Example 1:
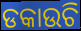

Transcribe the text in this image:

ଡକାଉଚି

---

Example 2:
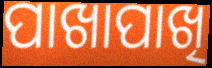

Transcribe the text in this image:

ପାଖାପାଖି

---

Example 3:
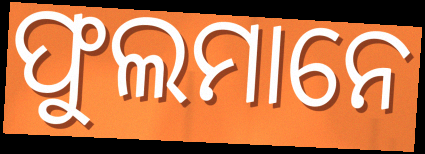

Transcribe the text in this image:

ଫୁଲମାନେ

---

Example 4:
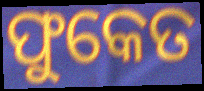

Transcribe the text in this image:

ଫୁକେତ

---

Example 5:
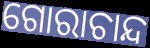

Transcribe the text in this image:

ଗୋରାଚାନ୍ଦ